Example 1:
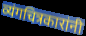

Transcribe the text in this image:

व्यंगचित्रकारांनी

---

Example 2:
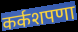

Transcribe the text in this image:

कर्कशपणा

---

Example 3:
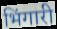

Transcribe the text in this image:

भिंगारी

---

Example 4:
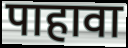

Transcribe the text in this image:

पाहावा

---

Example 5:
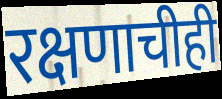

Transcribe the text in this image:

रक्षणाचीही